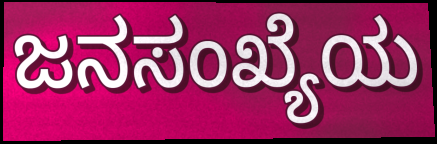
ಜನಸಂಖ್ಯೆಯ